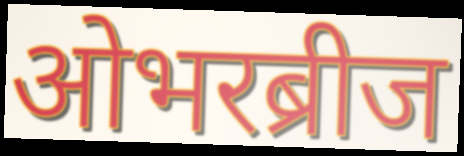
ओभरब्रीज